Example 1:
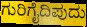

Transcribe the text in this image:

ಗುರಿಗೈದಿಪುದು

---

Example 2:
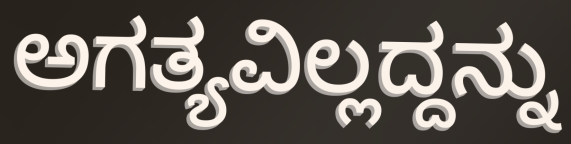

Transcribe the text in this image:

ಅಗತ್ಯವಿಲ್ಲದ್ದನ್ನು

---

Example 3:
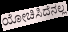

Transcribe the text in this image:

ಯೋಚಿಸಿದೆನಲ್ಲ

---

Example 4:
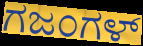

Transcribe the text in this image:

ಗಜಂಗಳ್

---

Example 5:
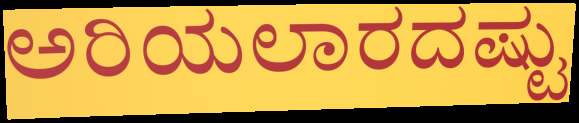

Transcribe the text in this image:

ಅರಿಯಲಾರದಷ್ಟು